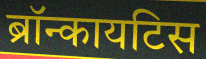
ब्रॉन्कायटिस